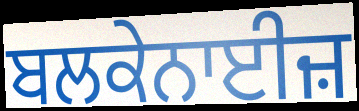
ਬਲਕੇਨਾਈਜ਼